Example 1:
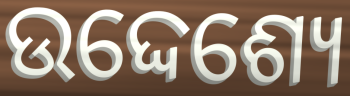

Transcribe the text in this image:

ଉଦ୍ଦେଶ୍ୟେ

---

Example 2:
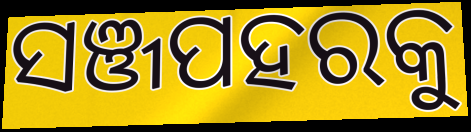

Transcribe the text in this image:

ସଞ୍ଜପହରକୁ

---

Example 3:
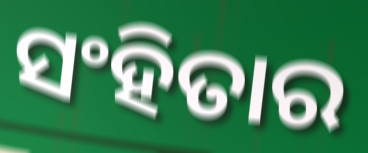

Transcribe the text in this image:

ସଂହିତାର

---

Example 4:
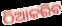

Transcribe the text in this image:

ଠିଆକରିବ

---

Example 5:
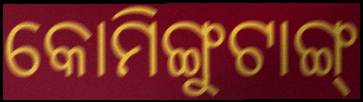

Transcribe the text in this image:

କୋମିଙ୍ଗୁଟାଙ୍ଗ୍